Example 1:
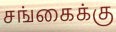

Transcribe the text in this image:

சங்கைக்கு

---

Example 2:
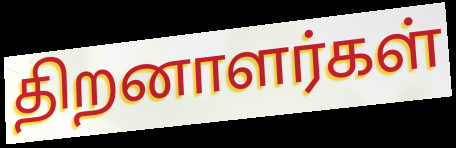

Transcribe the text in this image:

திறனாளர்கள்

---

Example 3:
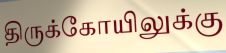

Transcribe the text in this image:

திருக்கோயிலுக்கு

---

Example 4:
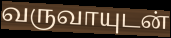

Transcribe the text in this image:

வருவாயுடன்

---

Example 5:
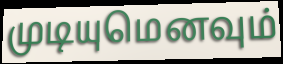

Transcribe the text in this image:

முடியுமெனவும்